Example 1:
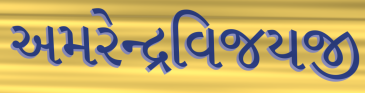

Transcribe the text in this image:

અમરેન્દ્રવિજયજી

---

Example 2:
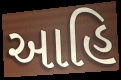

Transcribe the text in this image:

આહિ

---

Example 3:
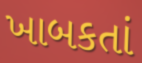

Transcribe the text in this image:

ખાબકતાં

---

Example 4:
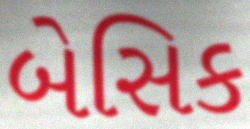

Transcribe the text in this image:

બેસિક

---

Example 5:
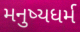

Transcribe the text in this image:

મનુષ્યધર્મ